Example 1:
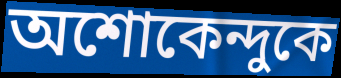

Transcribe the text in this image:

অশোকেন্দুকে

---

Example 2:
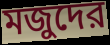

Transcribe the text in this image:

মজুদের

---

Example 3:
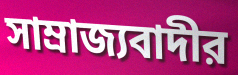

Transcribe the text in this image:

সাম্রাজ্যবাদীর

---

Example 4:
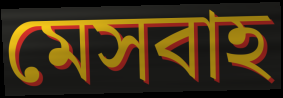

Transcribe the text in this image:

মেসবাহ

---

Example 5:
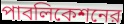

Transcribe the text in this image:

পাবলিকেশনের